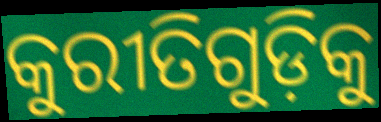
କୁରୀତିଗୁଡ଼ିକୁ